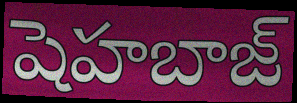
షెహబాజ్